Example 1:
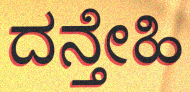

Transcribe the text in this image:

ದನ್ತೇಹಿ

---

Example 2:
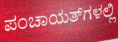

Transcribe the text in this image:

ಪಂಚಾಯತ್‌ಗಳಲ್ಲಿ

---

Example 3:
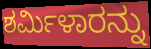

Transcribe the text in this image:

ಶರ್ಮಿಳಾರನ್ನು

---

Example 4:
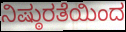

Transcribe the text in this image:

ನಿಷ್ಠುರತೆಯಿಂದ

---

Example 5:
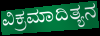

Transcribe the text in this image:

ವಿಕ್ರಮಾದಿತ್ಯನ